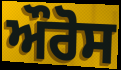
ਔਰੋਸ